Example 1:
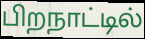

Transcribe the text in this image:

பிறநாட்டில்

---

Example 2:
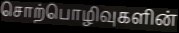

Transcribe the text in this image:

சொற்பொழிவுகளின்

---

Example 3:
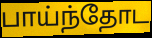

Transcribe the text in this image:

பாய்ந்தோட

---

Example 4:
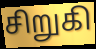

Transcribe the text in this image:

சிறுகி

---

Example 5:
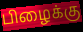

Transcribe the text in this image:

பிழைக்கு